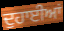
ਦੁਹਾਈਆਂ